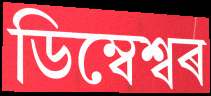
ডিম্বেশ্বৰ